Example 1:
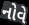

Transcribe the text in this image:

નોવે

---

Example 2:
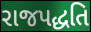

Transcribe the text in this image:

રાજપદ્ધતિ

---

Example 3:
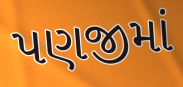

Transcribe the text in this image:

પણજીમાં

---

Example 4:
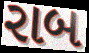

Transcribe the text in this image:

રાબ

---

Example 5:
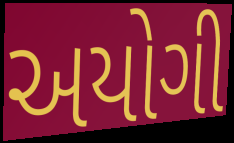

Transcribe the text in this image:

અયોગી